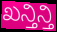
ಖನ್ತಿನ್ತಿ